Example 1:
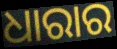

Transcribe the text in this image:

ଧାରାର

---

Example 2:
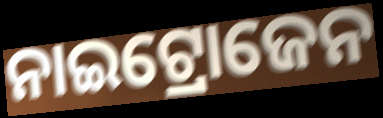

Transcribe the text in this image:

ନାଇଟ୍ରୋଜେନ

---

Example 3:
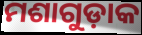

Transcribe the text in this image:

ମଶାଗୁଡ଼ାକ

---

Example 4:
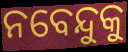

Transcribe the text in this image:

ନବେନ୍ଦୁକୁ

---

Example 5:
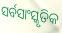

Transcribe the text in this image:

ସର୍ବସାଂସ୍କୃତିକ